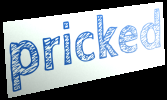
pricked